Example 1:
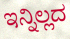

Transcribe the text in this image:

ಇನ್ನಿಲ್ಲದ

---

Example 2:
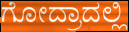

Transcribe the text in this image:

ಗೋದ್ರಾದಲ್ಲಿ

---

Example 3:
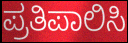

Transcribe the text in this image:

ಪ್ರತಿಪಾಲಿಸಿ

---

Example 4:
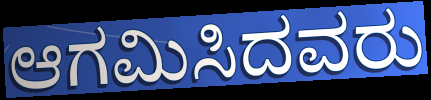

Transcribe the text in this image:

ಆಗಮಿಸಿದವರು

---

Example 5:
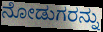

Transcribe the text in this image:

ನೋಡುಗರನ್ನು